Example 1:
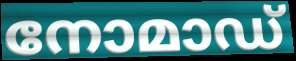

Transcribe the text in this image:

നോമാഡ്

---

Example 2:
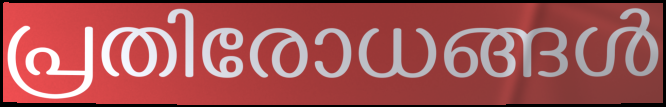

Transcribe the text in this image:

പ്രതിരോധങ്ങൾ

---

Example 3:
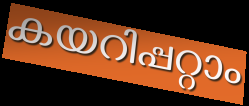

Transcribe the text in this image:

കയറിപ്പറ്റാം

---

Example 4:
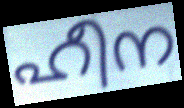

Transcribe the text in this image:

ഹീന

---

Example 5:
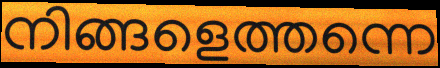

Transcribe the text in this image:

നിങ്ങളെത്തന്നെ